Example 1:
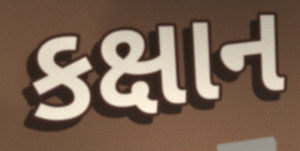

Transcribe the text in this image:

કક્ષાન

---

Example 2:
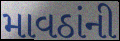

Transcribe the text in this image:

માવઠાંની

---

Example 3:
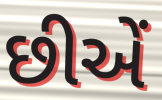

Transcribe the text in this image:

છીએં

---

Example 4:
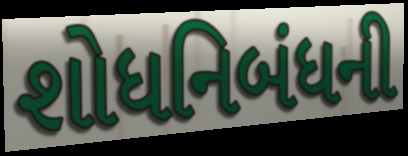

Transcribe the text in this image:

શોધનિબંધની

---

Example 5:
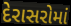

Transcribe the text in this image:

દેરાસરોમાં